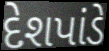
દેશપાંડે